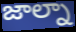
జాల్నా